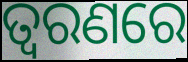
ତ୍ଵରଣରେ